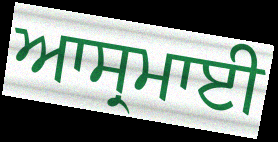
ਆਸ੍ਰਮਾਈ